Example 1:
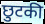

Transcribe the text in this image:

छुटकी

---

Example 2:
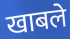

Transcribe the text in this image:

खाबले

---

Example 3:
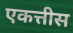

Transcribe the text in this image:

एकत्तीस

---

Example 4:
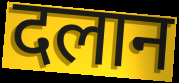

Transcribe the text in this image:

दलान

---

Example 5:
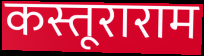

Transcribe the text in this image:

कस्तूराराम